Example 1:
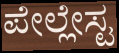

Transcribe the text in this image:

ಪೇಲ್ಲೇಸ್ಟ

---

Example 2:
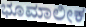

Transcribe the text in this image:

ಭೂಮಾಲೀಕ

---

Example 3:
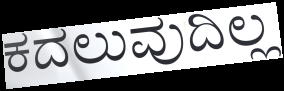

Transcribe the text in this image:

ಕದಲುವುದಿಲ್ಲ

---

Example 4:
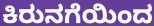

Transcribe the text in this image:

ಕಿರುನಗೆಯಿಂದ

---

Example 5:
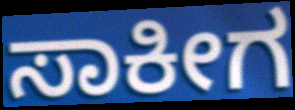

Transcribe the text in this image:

ಸಾಕೀಗ